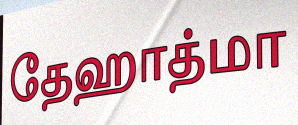
தேஹாத்மா